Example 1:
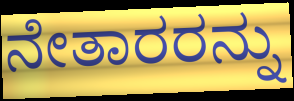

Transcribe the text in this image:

ನೇತಾರರನ್ನು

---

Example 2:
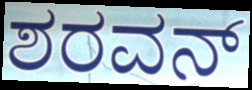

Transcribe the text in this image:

ಶರವನ್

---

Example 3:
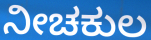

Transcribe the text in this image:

ನೀಚಕುಲ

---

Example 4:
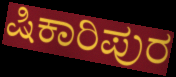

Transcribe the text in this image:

ಷಿಕಾರಿಪುರ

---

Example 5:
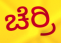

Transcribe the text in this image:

ಚೆರ್ರಿ